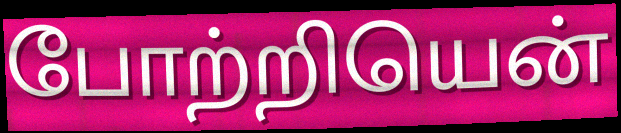
போற்றியென்